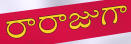
రారాజుగా